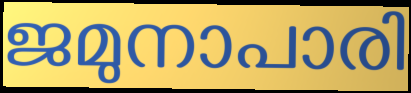
ജമുനാപാരി